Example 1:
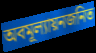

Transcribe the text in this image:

অবমূল্যায়নজনিত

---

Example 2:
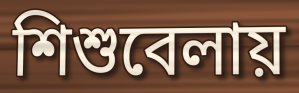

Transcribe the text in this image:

শিশুবেলায়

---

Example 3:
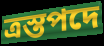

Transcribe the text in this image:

ত্রস্তপদে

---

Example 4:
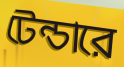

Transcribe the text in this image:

টেন্ডারে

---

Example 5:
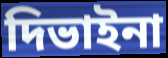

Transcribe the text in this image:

দিভাইনা